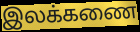
இலக்கணை